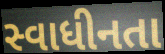
સ્વાધીનતા